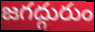
జగద్గురుం